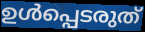
ഉൾപ്പെടരുത്